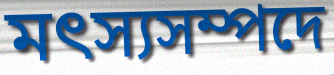
মৎস্যসম্পদে